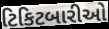
ટિકિટબારીઓ